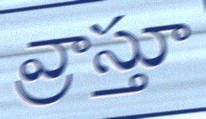
వ్రాస్తూ